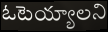
ఓటెయ్యాలని